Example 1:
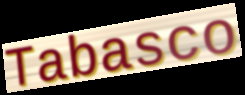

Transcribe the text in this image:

Tabasco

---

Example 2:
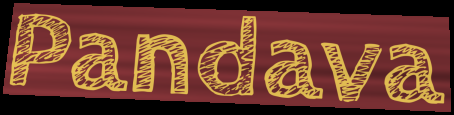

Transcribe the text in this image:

Pandava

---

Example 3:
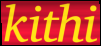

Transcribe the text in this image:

kithi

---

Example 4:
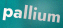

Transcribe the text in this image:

pallium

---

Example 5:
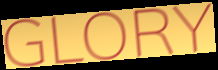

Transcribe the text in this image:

GLORY